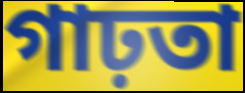
গাঢ়তা